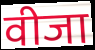
वीजा